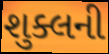
શુક્લની